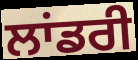
ਲਾਂਡਰੀ